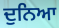
ਦੁਨਿਆ